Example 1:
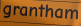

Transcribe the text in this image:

grantham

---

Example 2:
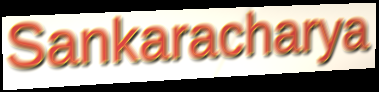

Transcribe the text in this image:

Sankaracharya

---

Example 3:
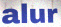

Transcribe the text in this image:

alur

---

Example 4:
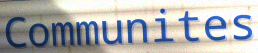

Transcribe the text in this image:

Communites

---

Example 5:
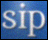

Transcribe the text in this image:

sip